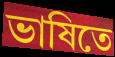
ভাষিতে